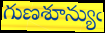
గుణశూన్యుఁ